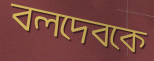
বলদেবকে